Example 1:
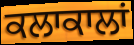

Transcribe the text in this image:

ਕਲਾਕਾਲਾਂ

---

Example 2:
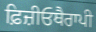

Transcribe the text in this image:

ਫ਼ਿਜ਼ੀਓਥੈਰਾਪੀ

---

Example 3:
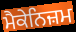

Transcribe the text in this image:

ਮੈਕੇਨਿਜ਼ਮ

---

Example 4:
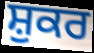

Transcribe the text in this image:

ਸ਼ੁਕਰ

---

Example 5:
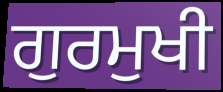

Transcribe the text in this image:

ਗੁਰਮੁਖੀ